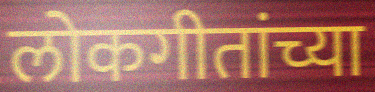
लोकगीतांच्या